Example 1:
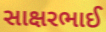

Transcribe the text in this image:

સાક્ષરભાઈ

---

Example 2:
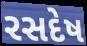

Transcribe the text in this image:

રસદેષ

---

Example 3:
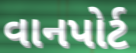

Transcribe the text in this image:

વાનપોર્ટ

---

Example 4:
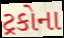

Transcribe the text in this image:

ટ્રકોના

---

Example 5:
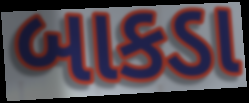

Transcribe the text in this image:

બાકડા